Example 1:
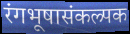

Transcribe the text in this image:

रंगभूषासंकल्पक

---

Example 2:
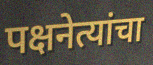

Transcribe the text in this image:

पक्षनेत्यांचा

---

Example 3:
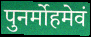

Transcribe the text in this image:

पुनर्मोहमेवं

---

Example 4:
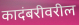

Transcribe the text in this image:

कादंबरीवरील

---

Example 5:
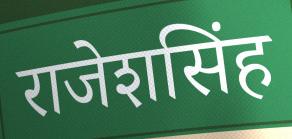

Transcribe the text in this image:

राजेशसिंह